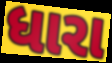
ધારા